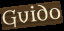
Guido